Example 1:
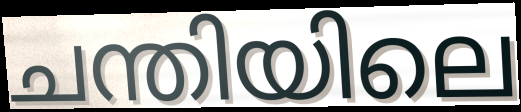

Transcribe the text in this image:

ചന്തിയിലെ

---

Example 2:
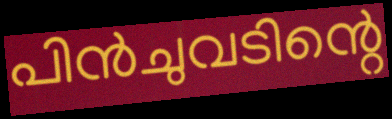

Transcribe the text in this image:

പിൻചുവടിന്റെ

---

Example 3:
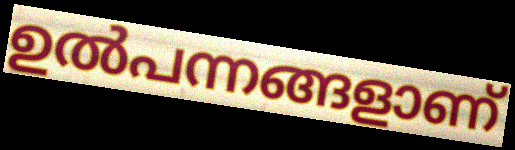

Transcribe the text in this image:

ഉൽപന്നങ്ങളാണ്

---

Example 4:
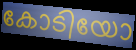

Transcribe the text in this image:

കോടിയോ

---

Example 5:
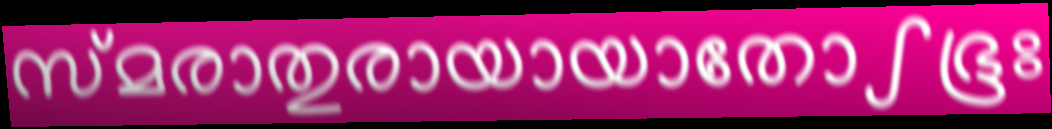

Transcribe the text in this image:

സ്മരാതുരായായാതോഽഭൂഃ